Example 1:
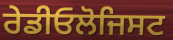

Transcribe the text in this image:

ਰੇਡੀਓਲੋਜਿਸਟ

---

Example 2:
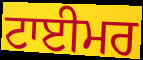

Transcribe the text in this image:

ਟਾਈਮਰ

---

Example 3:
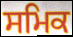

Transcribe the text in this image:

ਸਮਿਕ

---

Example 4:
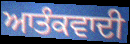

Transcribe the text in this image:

ਆਤੰਕਵਾਦੀ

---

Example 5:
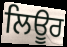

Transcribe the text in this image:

ਲਿਊਰ